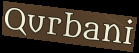
Qurbani